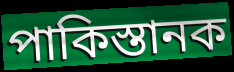
পাকিস্তানক